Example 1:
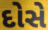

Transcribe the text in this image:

દોસે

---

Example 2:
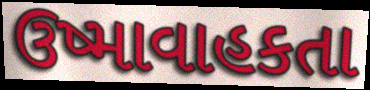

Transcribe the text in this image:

ઉષ્માવાહકતા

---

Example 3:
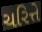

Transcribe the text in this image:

ચરિત્તે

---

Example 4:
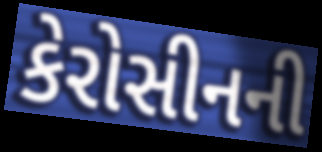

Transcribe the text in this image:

કેરોસીનની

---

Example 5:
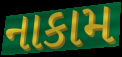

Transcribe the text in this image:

નાકામ